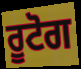
ਰੂਟੋਗ